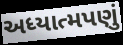
અધ્યાત્મપણું